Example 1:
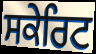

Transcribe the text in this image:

ਸਕੇਰਿਟ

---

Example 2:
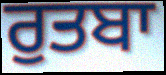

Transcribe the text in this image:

ਰੁਤਬਾ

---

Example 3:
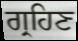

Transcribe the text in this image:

ਗ੍ਰਹਿਣ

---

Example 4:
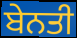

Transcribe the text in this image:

ਬੇਨਤੀ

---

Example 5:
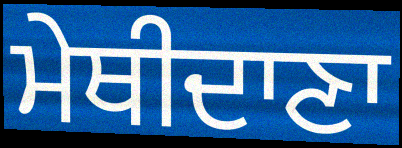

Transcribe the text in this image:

ਮੇਥੀਦਾਣਾ